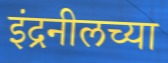
इंद्रनीलच्या